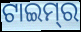
ଟାଇମ୍‌ର